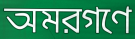
অমরগণে